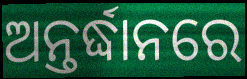
ଅନ୍ତର୍ଦ୍ଧାନରେ